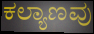
ಕಲ್ಯಾಣವು